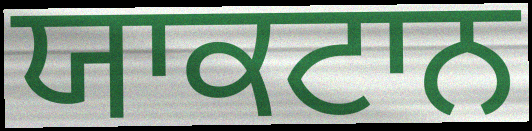
ਯਾਕਟਾਨ